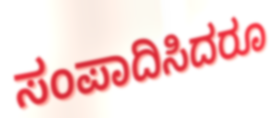
ಸಂಪಾದಿಸಿದರೂ